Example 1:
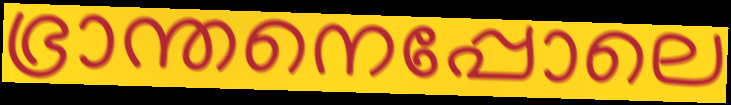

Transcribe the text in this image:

ഭ്രാന്തനെപ്പോലെ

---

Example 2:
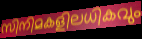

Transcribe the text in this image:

സിനിമകളിലധികവും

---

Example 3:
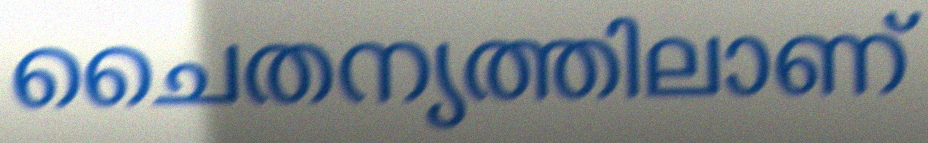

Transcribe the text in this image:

ചൈതന്യത്തിലാണ്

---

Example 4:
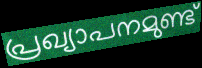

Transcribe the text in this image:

പ്രഖ്യാപനമുണ്ട്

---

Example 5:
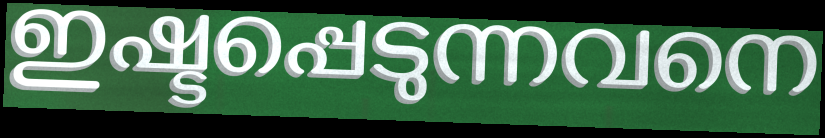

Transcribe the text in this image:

ഇഷ്ടപ്പെടുന്നവനെ